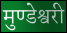
मुण्डेश्वरी